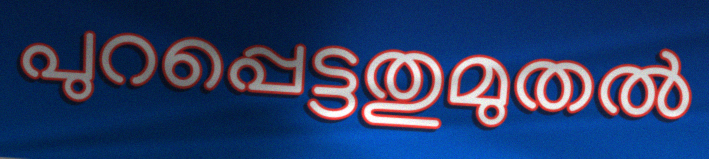
പുറപ്പെട്ടതുമുതൽ